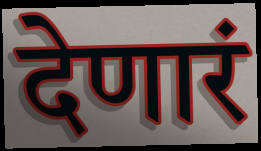
देणारं